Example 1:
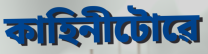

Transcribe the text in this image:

কাহিনীটোৱে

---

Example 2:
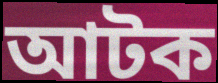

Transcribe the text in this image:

আটক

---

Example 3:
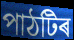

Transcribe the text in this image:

পাঠটিৰ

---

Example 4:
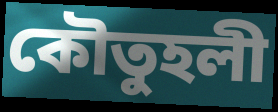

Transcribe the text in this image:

কৌতুহলী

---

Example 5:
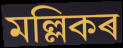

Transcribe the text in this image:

মল্লিকৰ